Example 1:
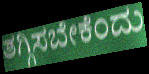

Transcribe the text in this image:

ತಗ್ಗಿಸಬೇಕೆಂದು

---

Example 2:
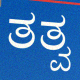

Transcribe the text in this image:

ತತ್ವ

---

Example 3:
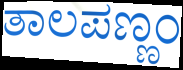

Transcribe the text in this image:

ತಾಲಪಣ್ಣಂ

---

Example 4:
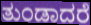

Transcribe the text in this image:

ತುಂಡಾದರೆ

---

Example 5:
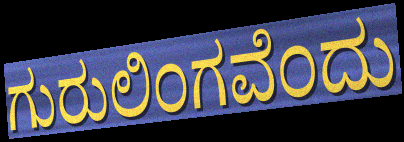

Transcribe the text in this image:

ಗುರುಲಿಂಗವೆಂದು